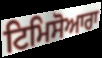
ਟਿਮਿਸੋਆਰਾ